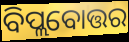
ବିପ୍ଲବୋତ୍ତର